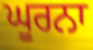
ਘੂਰਨਾ